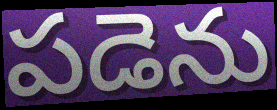
పడెను